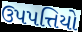
ઉપપત્તિયો